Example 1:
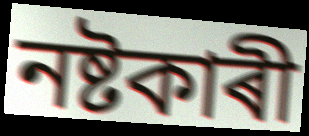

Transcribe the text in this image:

নষ্টকাৰী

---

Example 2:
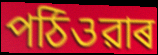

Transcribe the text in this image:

পঠিওৱাৰ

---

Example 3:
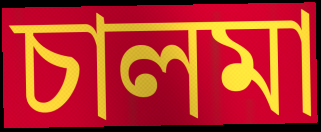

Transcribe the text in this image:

চালমা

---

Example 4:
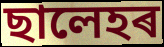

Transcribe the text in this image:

ছালেহৰ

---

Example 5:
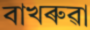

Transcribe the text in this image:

বাখৰুৱা